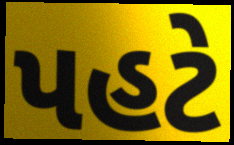
પહટે